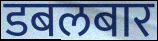
डबलबार